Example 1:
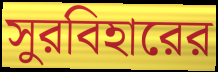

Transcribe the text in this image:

সুরবিহারের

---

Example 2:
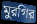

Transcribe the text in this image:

মুরগির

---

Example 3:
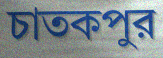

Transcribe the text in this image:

চাতকপুর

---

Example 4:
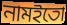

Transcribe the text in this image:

নামইতো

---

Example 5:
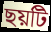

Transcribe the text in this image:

ছয়টি